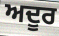
ਅਦੂਰ